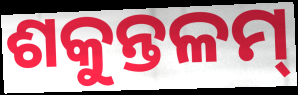
ଶକୁନ୍ତଳମ୍